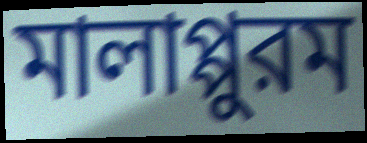
মালাপ্পুরম